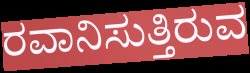
ರವಾನಿಸುತ್ತಿರುವ